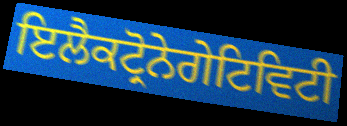
ਇਲੈਕਟ੍ਰੋਨੇਗੇਟਿਵਿਟੀ